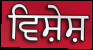
ਵਿਸ਼ੇਸ਼